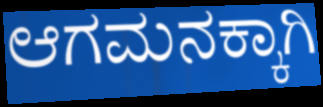
ಆಗಮನಕ್ಕಾಗಿ